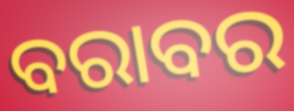
ବରାବର